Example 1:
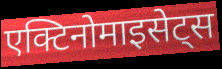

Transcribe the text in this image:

एक्टिनोमाइसेट्स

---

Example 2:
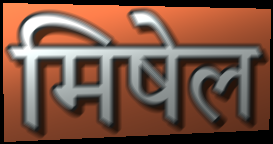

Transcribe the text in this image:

मिषेल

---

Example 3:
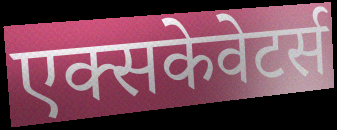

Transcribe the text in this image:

एक्सकेवेटर्स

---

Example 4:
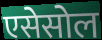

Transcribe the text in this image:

एसेसोल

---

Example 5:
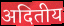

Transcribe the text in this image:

अदितीय